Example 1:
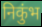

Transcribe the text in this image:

निकुंभ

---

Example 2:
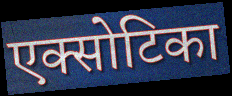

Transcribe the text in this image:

एक्सोटिका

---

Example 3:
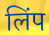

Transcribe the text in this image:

लिंप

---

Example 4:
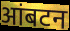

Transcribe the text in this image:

आंबटन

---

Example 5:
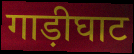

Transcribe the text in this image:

गाड़ीघाट